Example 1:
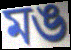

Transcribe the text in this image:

মঙ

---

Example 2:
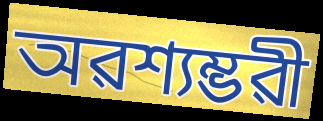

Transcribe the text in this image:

অৱশ্যম্ভৱী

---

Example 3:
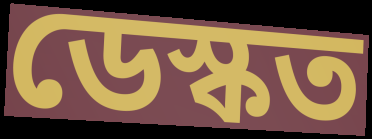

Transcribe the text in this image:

ডেস্কত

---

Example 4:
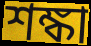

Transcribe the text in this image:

শঙ্কা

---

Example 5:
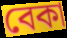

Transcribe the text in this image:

বেকা